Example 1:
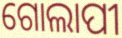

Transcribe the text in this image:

ଗୋଲାପୀ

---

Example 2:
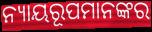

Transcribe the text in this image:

ନ୍ୟାୟରୂପମାନଙ୍କର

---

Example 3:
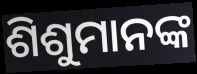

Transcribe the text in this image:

ଶିଶୁମାନଙ୍କ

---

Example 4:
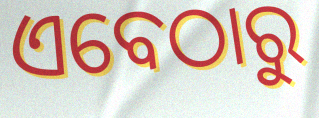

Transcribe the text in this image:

ଏବେଠାରୁ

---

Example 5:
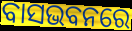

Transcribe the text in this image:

ବାସଭବନରେ